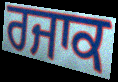
ਰਜਾਕ